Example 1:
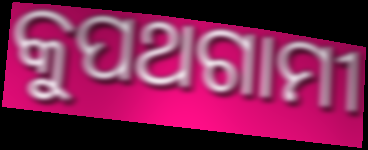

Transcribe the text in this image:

କୁପଥଗାମୀ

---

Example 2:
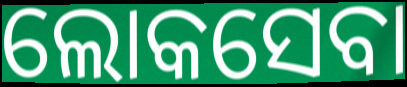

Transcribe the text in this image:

ଲୋକସେବା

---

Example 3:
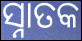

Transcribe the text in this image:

ସ୍ନାତକ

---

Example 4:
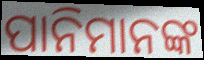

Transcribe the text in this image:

ପାନିମାନଙ୍କ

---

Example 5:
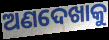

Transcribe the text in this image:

ଅଣଦେଖାକୁ